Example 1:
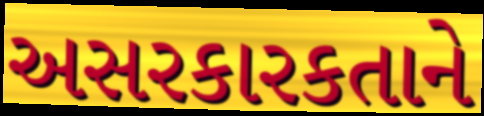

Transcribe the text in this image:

અસરકારકતાને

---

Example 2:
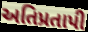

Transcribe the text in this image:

અતિપ્રતાપી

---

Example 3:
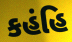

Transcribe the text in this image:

કહંહિ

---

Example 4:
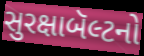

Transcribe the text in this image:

સુરક્ષાબૅલ્ટનો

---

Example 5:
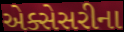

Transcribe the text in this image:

એક્સેસરીના